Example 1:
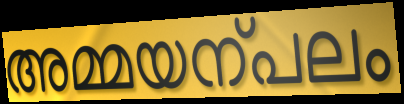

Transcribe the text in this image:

അമ്മയന്പലം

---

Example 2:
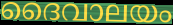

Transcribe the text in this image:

ദൈവാലയം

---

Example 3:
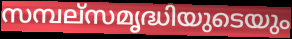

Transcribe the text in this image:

സമ്പല്സമൃദ്ധിയുടെയും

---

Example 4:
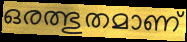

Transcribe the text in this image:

ഒരത്ഭുതമാണ്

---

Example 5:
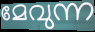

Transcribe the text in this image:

മേവുന്ന